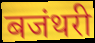
बजंथरी